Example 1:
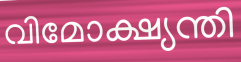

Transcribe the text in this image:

വിമോക്ഷ്യന്തി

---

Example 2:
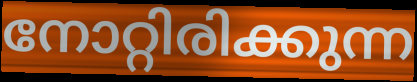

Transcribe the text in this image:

നോറ്റിരിക്കുന്ന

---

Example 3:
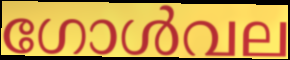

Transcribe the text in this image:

ഗോൾവല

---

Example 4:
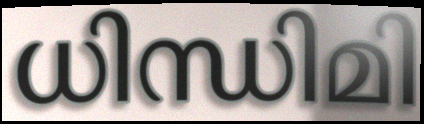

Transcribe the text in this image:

ധിന്ധിമി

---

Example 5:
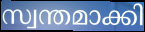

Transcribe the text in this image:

സ്വന്തമാക്കി